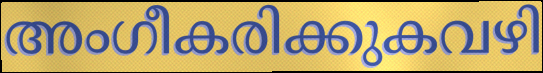
അംഗീകരിക്കുകവഴി